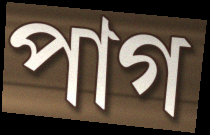
পাগ